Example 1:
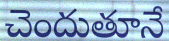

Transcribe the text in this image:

చెందుతూనే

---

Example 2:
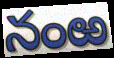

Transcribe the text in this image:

నంఱ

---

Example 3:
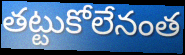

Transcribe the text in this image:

తట్టుకోలేనంత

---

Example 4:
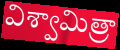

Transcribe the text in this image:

విశ్వామిత్రా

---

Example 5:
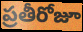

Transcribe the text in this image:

ప్రతీరోజూ